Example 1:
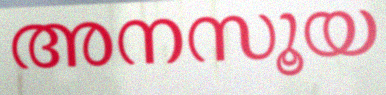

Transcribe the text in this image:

അനസൂയ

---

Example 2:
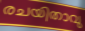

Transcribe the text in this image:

രചയിതാവു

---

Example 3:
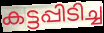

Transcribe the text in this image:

കട്ടപ്പിടിച്ച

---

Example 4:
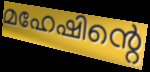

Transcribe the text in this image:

മഹേഷിന്റെ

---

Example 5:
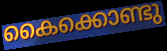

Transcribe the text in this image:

കൈക്കൊണ്ടു